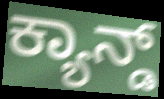
ಕ್ಯಾನ್ಡ್